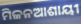
ମିଳନଆଶାୟୀ